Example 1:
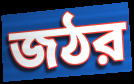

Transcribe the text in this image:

জঠর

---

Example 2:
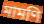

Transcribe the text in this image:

মামণি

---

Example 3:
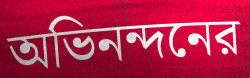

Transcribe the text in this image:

অভিনন্দনের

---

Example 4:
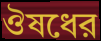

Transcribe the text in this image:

ঔষধের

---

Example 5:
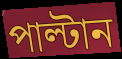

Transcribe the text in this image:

পাল্টান